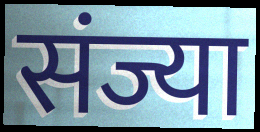
संज्या